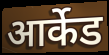
आर्केड